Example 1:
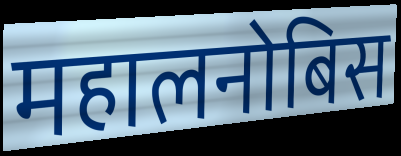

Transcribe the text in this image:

महालनोबिस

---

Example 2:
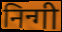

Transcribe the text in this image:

निन्गी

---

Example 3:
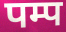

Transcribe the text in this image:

पम्प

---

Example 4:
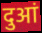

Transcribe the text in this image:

दुआं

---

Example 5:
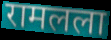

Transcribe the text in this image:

रामलला